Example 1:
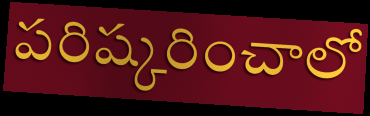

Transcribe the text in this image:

పరిష్కరించాలో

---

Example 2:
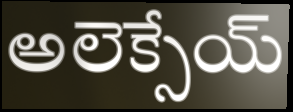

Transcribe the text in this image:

అలెక్సేయ్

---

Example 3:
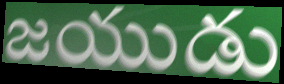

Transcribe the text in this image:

జయుడు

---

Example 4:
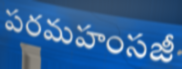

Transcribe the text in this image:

పరమహంసజీ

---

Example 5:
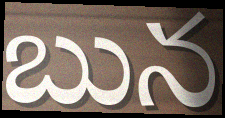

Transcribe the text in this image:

బున